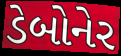
ડેબોનેર